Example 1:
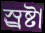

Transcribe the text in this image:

স্র্রষ্টা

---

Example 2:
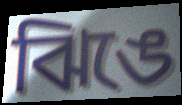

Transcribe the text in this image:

ঝিঙে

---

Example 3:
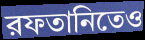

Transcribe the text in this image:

রফতানিতেও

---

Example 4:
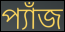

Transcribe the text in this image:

প্যাঁজ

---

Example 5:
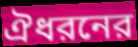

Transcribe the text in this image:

ঐধরনের